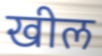
खील